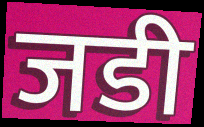
जडी